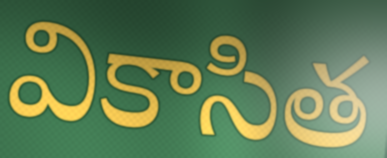
వికాసిత